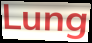
Lung